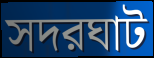
সদরঘাট